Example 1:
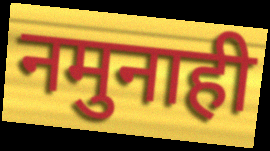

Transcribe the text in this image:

नमुनाही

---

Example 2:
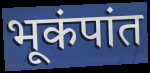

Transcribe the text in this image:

भूकंपांत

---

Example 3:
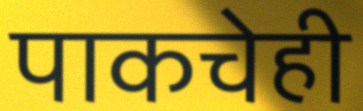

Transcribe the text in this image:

पाकचेही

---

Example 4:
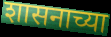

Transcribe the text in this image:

शासनाच्या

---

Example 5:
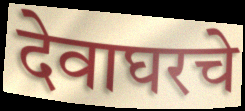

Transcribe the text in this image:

देवाघरचे